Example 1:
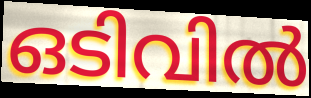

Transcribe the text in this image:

ഒടിവിൽ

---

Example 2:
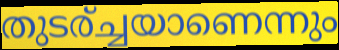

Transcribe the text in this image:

തുടര്ച്ചയാണെന്നും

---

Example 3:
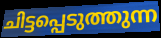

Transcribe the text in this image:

ചിട്ടപ്പെടുത്തുന്ന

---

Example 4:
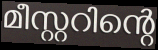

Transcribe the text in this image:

മീസ്റ്ററിന്റെ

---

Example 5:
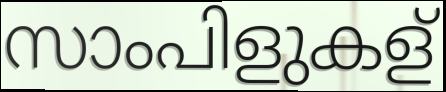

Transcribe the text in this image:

സാംപിളുകള്